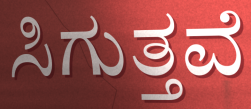
ಸಿಗುತ್ತವೆ